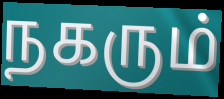
நகரும்